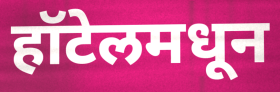
हॉटेलमधून